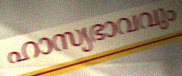
ഹാസ്യഭാവവും